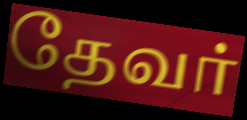
தேவர்